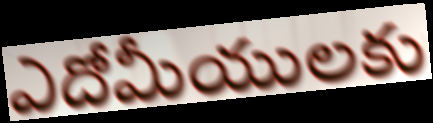
ఎదోమీయులకు